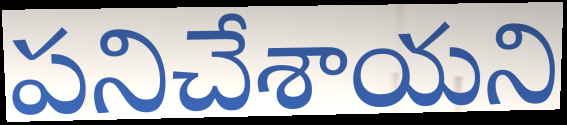
పనిచేశాయని